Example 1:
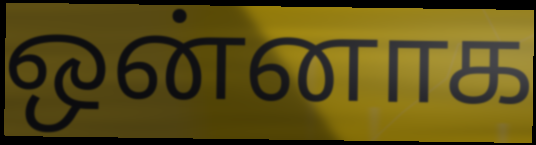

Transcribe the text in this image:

ஒன்னாக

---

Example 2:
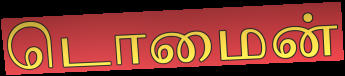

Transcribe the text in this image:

டொமைன்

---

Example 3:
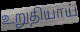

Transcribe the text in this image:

உறுதியாய்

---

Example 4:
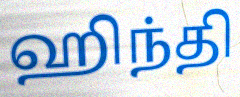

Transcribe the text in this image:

ஹிந்தி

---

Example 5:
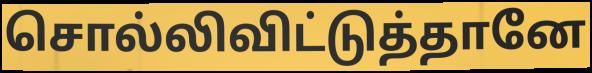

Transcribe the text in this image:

சொல்லிவிட்டுத்தானே